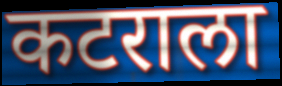
कटराला